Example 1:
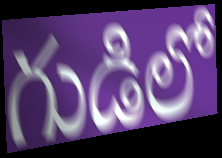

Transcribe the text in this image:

గుడిలో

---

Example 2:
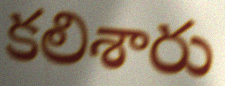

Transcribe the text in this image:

కలిశారు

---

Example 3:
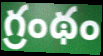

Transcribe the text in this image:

గ్రంథం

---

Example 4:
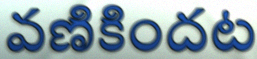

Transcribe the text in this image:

వణికిందట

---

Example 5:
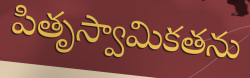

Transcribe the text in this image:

పితృస్వామికతను